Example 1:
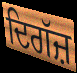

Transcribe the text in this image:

ਦਿਗੱਜ਼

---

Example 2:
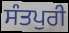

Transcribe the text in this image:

ਸੰਤਪੁਰੀ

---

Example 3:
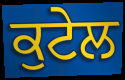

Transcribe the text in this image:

ਕੁਟੇਲ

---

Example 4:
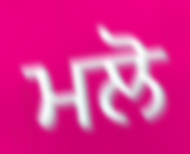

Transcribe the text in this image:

ਮਲੋ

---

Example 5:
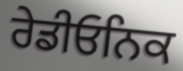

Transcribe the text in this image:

ਰੇਡੀਓਨਿਕ